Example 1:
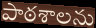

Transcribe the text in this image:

పాఠశాలను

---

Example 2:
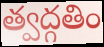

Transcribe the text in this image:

త్వద్గతిం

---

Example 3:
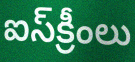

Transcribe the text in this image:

ఐస్‌క్రీంలు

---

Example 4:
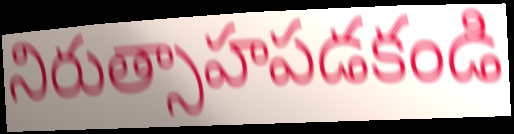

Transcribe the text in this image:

నిరుత్సాహపడకండి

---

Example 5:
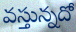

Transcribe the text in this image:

వస్తున్నదో